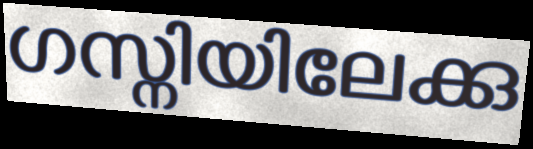
ഗസ്നിയിലേക്കു